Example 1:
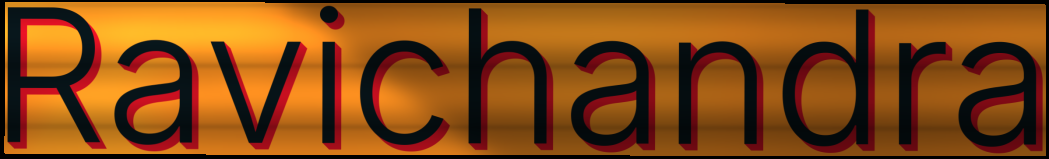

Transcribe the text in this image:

Ravichandra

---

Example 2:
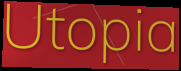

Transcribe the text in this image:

Utopia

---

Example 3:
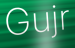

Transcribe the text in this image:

Gujr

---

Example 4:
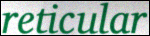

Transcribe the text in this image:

reticular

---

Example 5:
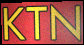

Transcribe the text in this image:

KTN